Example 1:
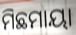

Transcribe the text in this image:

ମିଛମାୟା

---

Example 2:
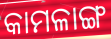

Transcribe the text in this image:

କାମଳାଙ୍ଗ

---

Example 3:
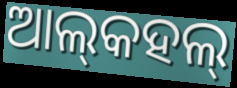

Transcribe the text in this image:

ଆଲ୍‌କହଲ୍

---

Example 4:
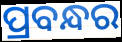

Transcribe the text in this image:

ପ୍ରବନ୍ଧର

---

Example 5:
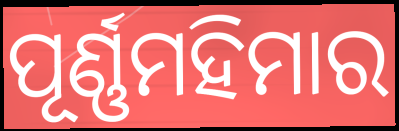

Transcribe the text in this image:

ପୂର୍ଣ୍ଣମହିମାର